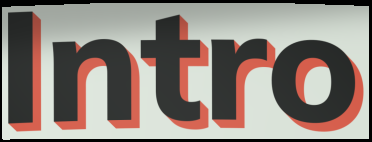
Intro